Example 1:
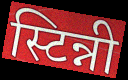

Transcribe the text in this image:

स्टिन्नी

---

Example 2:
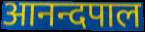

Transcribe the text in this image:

आनन्दपाल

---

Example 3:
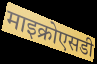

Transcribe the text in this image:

माइक्रोएसडी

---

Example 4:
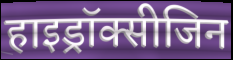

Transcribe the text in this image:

हाइड्रॉक्सीजिन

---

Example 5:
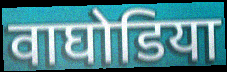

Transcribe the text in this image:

वाघोडिया